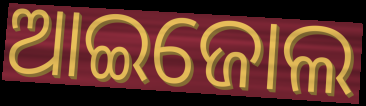
ଆଇଜୋଲ